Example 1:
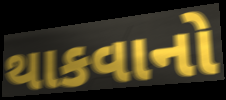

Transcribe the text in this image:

થાકવાનો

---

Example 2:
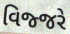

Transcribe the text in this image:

વિજ્જરે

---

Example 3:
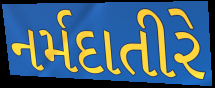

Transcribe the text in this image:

નર્મદાતીરે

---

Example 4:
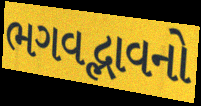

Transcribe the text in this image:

ભગવદ્ભાવનો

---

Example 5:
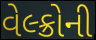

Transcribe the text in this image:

વેલ્ક્રોની